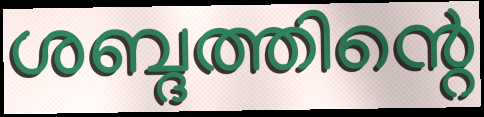
ശബ്ദത്തിന്റെ